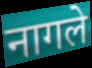
नागले